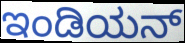
ಇಂಡಿಯನ್